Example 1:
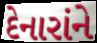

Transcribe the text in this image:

દેનારાંને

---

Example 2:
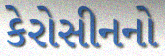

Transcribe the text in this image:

કેરોસીનનો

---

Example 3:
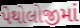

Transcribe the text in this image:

પેથોલોજીમાં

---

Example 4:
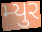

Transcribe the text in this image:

મ્યુર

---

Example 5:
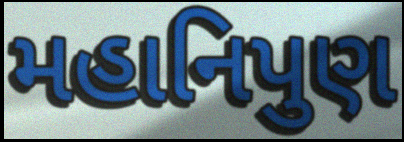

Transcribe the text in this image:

મહાનિપુણ